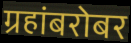
ग्रहांबरोबर